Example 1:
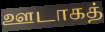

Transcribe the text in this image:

ஊடாகத்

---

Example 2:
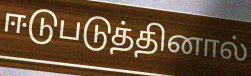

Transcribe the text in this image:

ஈடுபடுத்தினால்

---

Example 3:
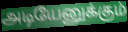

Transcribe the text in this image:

அடியேனுக்கும்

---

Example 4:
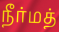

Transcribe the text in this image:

நீர்மத்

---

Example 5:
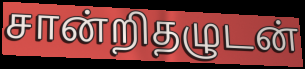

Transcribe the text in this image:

சான்றிதழுடன்